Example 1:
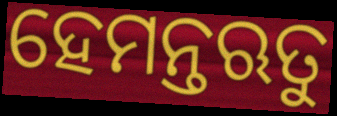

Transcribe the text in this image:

ହେମନ୍ତଋତୁ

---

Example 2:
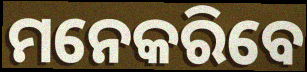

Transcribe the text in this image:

ମନେକରିବେ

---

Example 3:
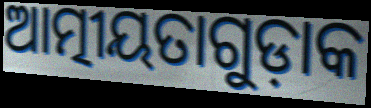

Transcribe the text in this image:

ଆତ୍ମୀୟତାଗୁଡ଼ାକ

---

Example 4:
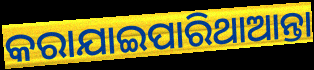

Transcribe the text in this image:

କରାଯାଇପାରିଥାଆନ୍ତା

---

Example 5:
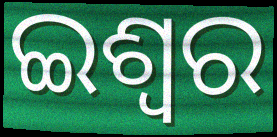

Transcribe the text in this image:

ଇଶ୍ଵର